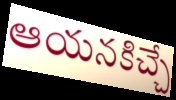
ఆయనకిచ్చే